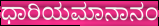
ಧಾರಿಯಮಾನಾನಂ